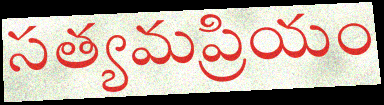
సత్యమప్రియం